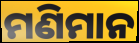
ମଣିମାନ